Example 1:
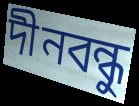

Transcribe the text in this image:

দীনবন্ধু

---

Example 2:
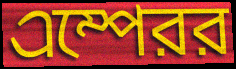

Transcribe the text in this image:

এম্পেরর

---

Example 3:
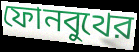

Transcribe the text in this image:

ফোনবুথের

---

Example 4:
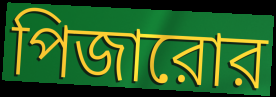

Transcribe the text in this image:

পিজারোর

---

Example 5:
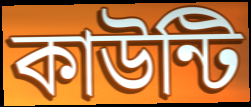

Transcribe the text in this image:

কাউন্টি